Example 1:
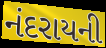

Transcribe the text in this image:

નંદરાયની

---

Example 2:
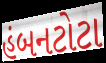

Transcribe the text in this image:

હંબનટોટા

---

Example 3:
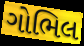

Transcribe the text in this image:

ગોભિલ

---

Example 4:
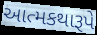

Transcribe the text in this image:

આત્મકથારૂપે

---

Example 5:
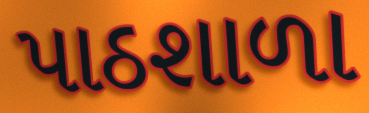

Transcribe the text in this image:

પાઠશાળા